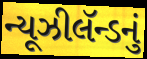
ન્યૂઝીલૅન્ડનું